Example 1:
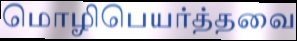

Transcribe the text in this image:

மொழிபெயர்த்தவை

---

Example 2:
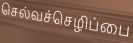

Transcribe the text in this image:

செல்வச்செழிப்பை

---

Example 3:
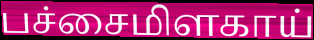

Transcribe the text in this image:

பச்சைமிளகாய்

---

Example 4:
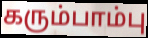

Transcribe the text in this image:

கரும்பாம்பு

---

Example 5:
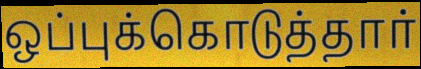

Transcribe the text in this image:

ஒப்புக்கொடுத்தார்